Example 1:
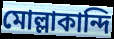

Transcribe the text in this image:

মোল্লাকান্দি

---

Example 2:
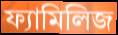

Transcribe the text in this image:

ফ্যামিলিজ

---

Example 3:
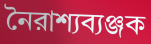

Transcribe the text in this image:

নৈরাশ্যব্যঞ্জক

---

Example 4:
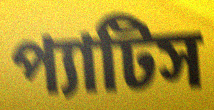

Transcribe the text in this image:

প্যাটিস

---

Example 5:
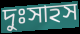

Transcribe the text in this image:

দুঃসাহস